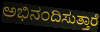
ಅಭಿನಂದಿಸುತ್ತಾರೆ